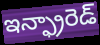
ఇన్ఫ్రారెడ్